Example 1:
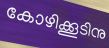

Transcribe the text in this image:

കോഴിക്കൂടിനു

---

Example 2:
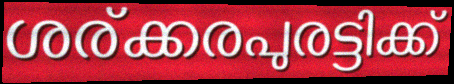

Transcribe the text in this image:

ശര്ക്കരപുരട്ടിക്ക്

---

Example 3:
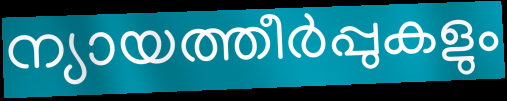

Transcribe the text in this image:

ന്യായത്തീർപ്പുകളും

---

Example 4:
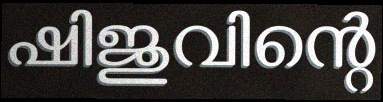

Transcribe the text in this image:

ഷിജുവിന്റെ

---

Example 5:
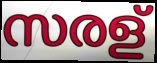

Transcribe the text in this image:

സരള്